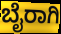
ಬೈರಾಗಿ